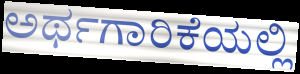
ಅರ್ಥಗಾರಿಕೆಯಲ್ಲಿ